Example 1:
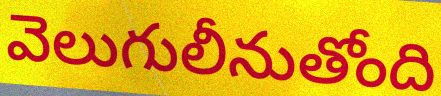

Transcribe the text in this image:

వెలుగులీనుతోంది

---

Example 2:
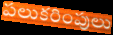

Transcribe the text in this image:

పలుకరింపులు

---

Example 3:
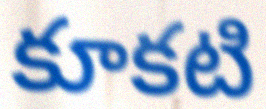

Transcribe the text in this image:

కూకటి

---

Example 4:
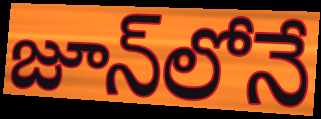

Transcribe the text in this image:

జూన్‌లోనే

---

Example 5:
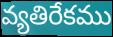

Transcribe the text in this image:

వ్యతిరేకము